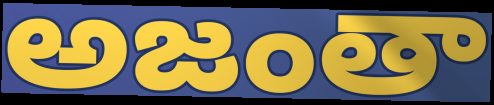
అజంతా